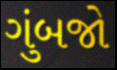
ગુંબજો